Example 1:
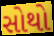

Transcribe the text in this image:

સોથો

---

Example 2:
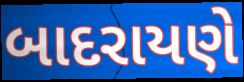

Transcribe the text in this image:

બાદરાયણે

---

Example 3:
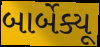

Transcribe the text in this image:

બાર્બેક્યૂ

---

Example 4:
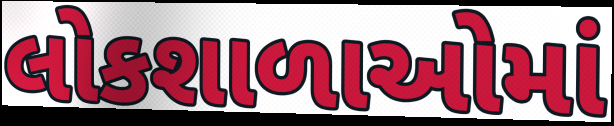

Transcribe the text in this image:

લોકશાળાઓમાં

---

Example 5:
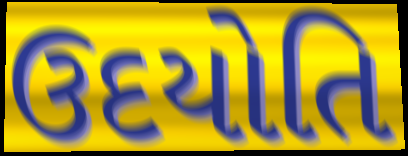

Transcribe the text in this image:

ઉદયોતિ